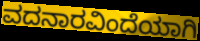
ವದನಾರವಿಂದೆಯಾಗಿ